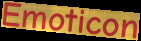
Emoticon